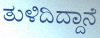
ತುಳಿದಿದ್ದಾನೆ